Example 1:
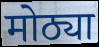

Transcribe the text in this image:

मोठ्या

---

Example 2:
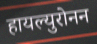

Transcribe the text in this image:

हायल्युरोनन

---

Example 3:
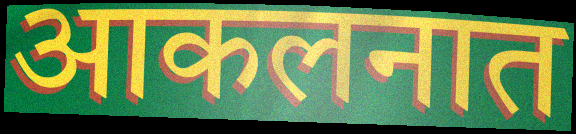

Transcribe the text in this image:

आकलनात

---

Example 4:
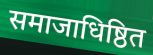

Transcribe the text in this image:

समाजाधिष्ठित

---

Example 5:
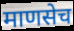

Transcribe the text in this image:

माणसेच